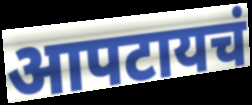
आपटायचं